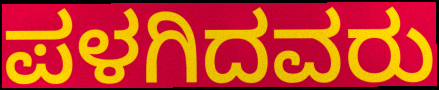
ಪಳಗಿದವರು